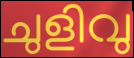
ചുളിവു